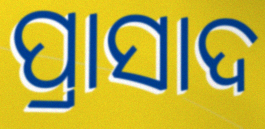
ପ୍ରାସାଦ